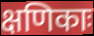
क्षणिकाः